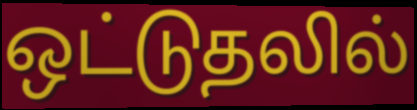
ஒட்டுதலில்